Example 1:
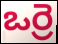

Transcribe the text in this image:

ఒర్రె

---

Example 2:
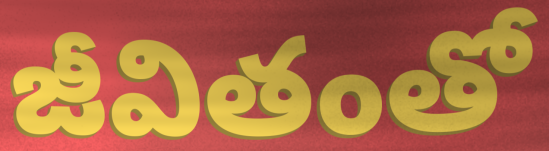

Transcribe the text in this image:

జీవితంతో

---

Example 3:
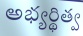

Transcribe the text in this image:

అభ్యర్థిత్వ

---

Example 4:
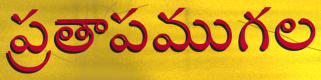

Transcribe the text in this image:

ప్రతాపముగల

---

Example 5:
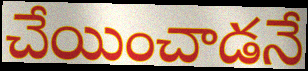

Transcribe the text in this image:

చేయించాడనే